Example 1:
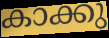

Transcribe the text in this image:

കാക്കു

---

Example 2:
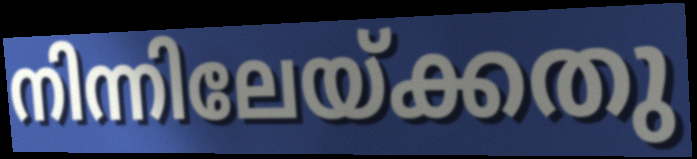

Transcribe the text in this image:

നിന്നിലേയ്ക്കതു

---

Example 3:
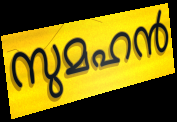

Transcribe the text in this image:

സുമഹൻ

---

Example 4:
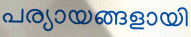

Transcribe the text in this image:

പര്യായങ്ങളായി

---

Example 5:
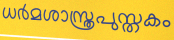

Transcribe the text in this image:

ധർമശാസ്ത്രപുസ്തകം